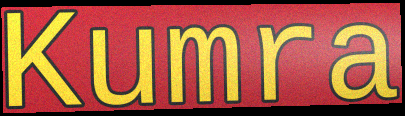
Kumra